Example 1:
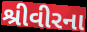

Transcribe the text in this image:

શ્રીવીરના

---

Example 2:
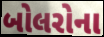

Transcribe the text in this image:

બોલરોના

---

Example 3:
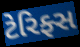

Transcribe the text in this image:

ટેરિફ્સ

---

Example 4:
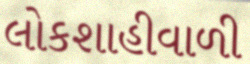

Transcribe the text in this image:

લોકશાહીવાળી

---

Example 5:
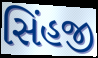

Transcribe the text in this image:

સિંહજી